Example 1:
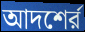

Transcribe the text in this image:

আদশের্র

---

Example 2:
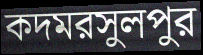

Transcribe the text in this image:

কদমরসুলপুর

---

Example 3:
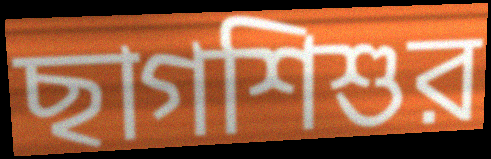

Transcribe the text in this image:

ছাগশিশুর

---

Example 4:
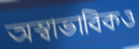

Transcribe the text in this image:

অস্বাভাবিকও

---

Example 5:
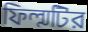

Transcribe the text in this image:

ফিল্মটির